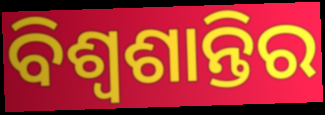
ବିଶ୍ୱଶାନ୍ତିର